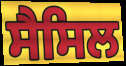
ਸੈਸਿਲ